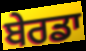
ਬੇਰਡਾ